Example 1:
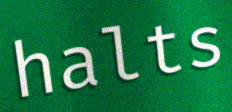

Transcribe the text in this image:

halts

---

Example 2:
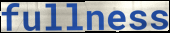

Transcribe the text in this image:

fullness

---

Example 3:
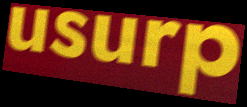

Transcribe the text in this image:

usurp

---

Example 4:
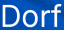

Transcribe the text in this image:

Dorf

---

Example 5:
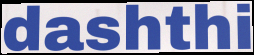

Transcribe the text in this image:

dashthi